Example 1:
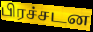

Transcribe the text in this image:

பிரச்சடன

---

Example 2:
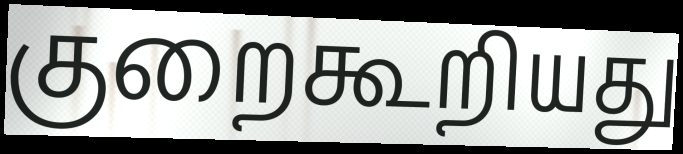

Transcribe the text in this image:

குறைகூறியது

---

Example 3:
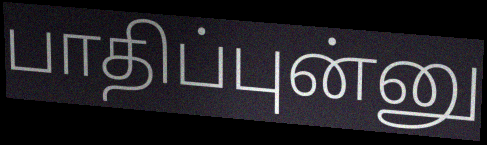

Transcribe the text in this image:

பாதிப்புன்னு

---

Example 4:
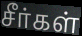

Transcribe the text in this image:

சீர்கள்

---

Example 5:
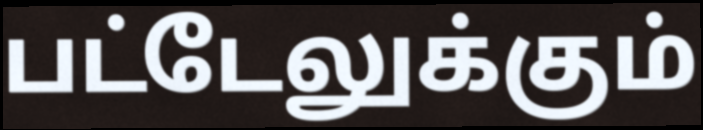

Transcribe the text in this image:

பட்டேலுக்கும்